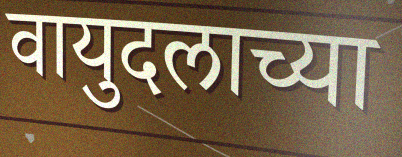
वायुदलाच्या